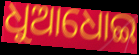
ଧୁଆଧୋଇ